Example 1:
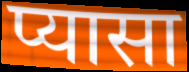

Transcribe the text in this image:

प्यासा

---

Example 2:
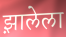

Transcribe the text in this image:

झ़ालेला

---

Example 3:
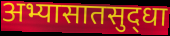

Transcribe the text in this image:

अभ्यासातसुद्धा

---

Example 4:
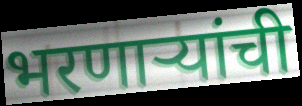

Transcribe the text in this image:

भरणाऱ्यांची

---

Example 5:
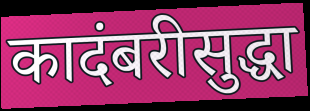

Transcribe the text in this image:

कादंबरीसुद्धा